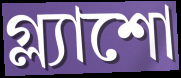
গ্ল্যাশো